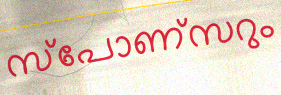
സ്പോണ്സറും